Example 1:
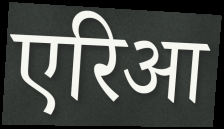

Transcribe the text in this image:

एरिआ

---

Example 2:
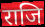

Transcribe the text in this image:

राजि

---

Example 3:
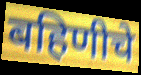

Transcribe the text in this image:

बहिणीचे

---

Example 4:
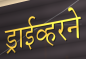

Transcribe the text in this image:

ड्राईव्हरने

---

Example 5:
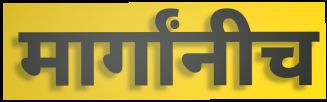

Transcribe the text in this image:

मार्गांनीच